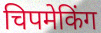
चिपमेकिंग